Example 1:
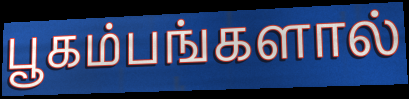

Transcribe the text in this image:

பூகம்பங்களால்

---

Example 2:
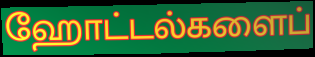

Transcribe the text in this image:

ஹோட்டல்களைப்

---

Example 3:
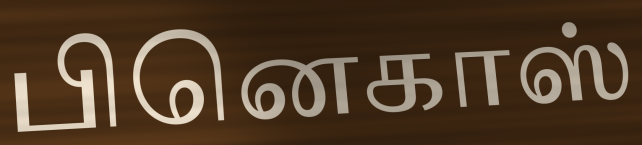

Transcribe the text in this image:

பினெகாஸ்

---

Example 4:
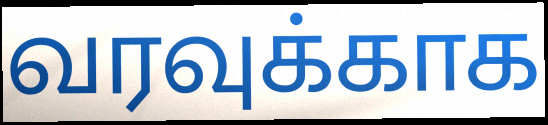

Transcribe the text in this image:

வரவுக்காக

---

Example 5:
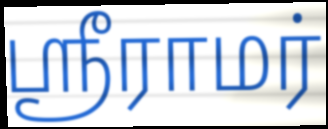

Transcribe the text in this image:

ஶ்ரீராமர்